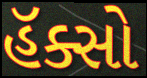
હૅક્સો